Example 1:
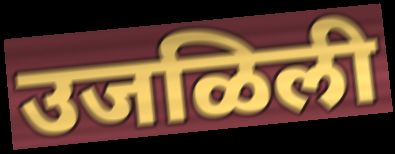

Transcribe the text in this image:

उजळिली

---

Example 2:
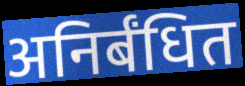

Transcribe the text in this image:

अनिर्बंधित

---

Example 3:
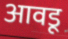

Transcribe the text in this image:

आवडू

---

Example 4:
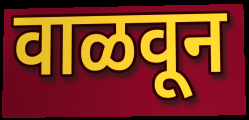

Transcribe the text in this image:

वाळवून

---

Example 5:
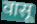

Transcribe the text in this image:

वासू